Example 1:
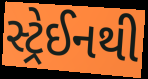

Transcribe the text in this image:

સ્ટ્રેઈનથી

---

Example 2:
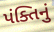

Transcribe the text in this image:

પંક્તિનું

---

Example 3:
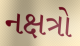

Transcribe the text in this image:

નક્ષત્રો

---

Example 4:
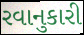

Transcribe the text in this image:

રવાનુકારી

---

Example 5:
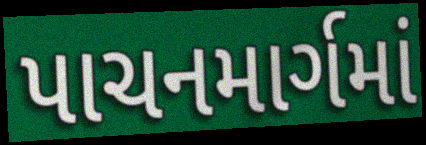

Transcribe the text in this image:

પાચનમાર્ગમાં